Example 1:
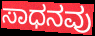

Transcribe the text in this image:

ಸಾಧನವು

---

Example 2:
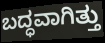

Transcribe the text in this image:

ಬದ್ಧವಾಗಿತ್ತು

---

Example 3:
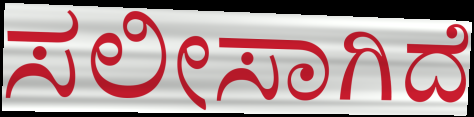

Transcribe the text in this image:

ಸಲೀಸಾಗಿದೆ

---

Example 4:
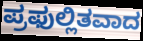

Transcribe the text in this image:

ಪ್ರಫುಲ್ಲಿತವಾದ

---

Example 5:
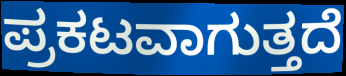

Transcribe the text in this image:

ಪ್ರಕಟವಾಗುತ್ತದೆ